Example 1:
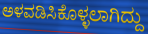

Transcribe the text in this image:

ಅಳವಡಿಸಿಕೊಳ್ಳಲಾಗಿದ್ದು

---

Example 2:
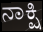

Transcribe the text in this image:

ನಾಕ್ಷಿ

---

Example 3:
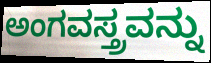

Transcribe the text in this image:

ಅಂಗವಸ್ತ್ರವನ್ನು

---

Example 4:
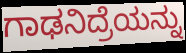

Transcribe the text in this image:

ಗಾಢನಿದ್ರೆಯನ್ನು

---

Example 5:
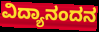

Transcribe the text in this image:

ವಿದ್ಯಾನಂದನ